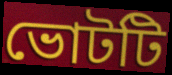
ভোটটি